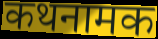
कथनामक